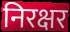
निरक्षर